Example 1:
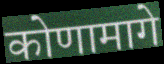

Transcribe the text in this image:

कोणामागे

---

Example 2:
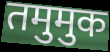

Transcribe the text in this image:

तमुमुक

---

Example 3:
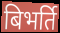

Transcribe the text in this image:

बिभर्ति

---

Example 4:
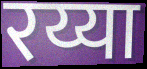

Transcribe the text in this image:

रय्या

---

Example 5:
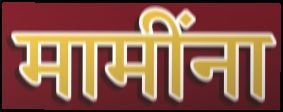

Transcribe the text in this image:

मामींना